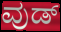
ವುಡ್